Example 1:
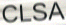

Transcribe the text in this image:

CLSA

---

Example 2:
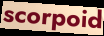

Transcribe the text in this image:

scorpoid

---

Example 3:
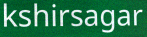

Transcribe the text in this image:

kshirsagar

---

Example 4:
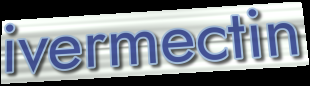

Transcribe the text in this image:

ivermectin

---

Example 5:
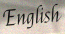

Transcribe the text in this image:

English